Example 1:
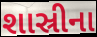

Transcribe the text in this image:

શાસ્રીના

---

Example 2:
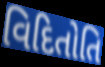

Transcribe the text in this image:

વિદિતોતિ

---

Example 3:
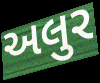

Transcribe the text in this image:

અલુર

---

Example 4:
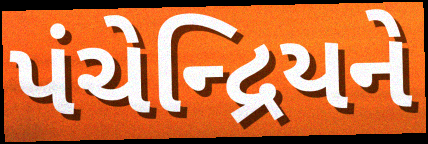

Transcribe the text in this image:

પંચેન્દ્રિયને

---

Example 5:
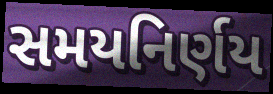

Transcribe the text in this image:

સમયનિર્ણય